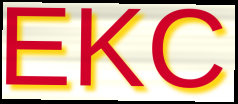
EKC